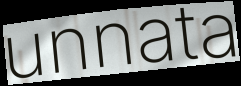
unnata